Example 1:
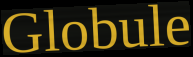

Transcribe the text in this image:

Globule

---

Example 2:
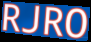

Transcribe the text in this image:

RJRO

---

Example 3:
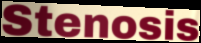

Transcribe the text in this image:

Stenosis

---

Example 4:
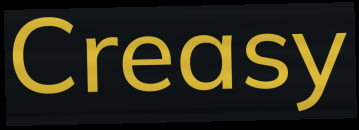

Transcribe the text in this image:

Creasy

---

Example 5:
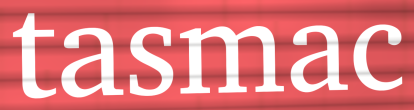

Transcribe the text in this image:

tasmac